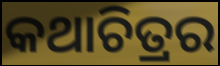
କଥାଚିତ୍ରର